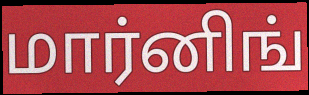
மார்னிங்